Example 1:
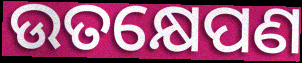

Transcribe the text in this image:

ଉତକ୍ଷେପଣ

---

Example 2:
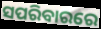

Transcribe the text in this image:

ସପରିବାରରେ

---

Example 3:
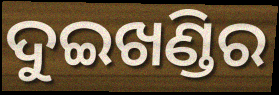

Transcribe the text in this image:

ଦୁଇଖଣ୍ଡିର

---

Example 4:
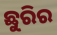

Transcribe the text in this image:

ଛୁରିର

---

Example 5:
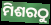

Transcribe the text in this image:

ମିଶରଠୁ